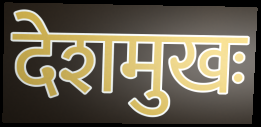
देशमुखः